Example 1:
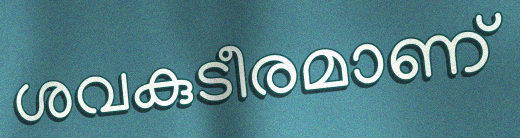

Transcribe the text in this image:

ശവകുടീരമാണ്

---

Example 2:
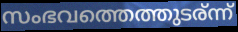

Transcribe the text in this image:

സംഭവത്തെത്തുടര്ന്ന്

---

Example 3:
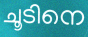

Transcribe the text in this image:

ചൂടിനെ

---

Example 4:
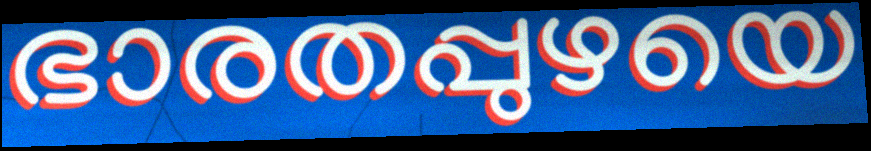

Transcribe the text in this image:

ഭാരതപ്പുഴയെ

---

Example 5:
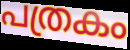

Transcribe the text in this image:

പത്രകം